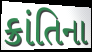
ક્રાંતિના